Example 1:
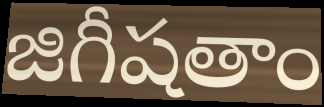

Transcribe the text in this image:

జిగీషతాం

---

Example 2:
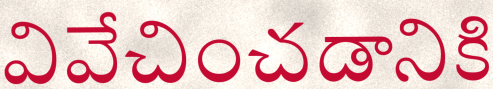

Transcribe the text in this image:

వివేచించడానికి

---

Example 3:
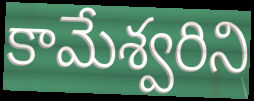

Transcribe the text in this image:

కామేశ్వరిని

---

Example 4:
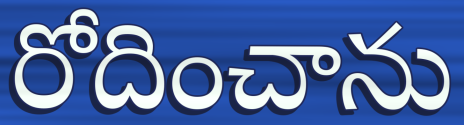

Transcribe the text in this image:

రోదించాను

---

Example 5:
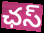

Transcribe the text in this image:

ఛస్